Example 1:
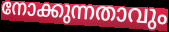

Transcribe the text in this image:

നോക്കുന്നതാവും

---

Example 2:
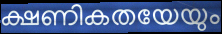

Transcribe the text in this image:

ക്ഷണികതയേയും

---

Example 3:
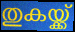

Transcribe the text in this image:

തുകയ്ക്ക്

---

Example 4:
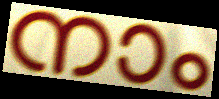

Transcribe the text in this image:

നാം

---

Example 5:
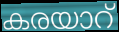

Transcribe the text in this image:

കരയാറ്